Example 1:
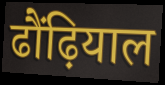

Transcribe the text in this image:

ढौंढ़ियाल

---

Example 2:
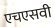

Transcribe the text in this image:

एचएसवी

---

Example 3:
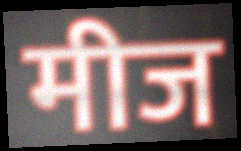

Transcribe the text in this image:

मीज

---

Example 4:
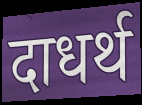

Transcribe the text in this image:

दाधर्थ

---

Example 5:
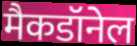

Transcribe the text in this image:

मैकडॉनेल